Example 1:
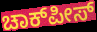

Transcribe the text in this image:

ಚಾಕ್‌ಪೀಸ್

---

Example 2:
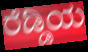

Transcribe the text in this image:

ರೆಡ್ಡಿಯ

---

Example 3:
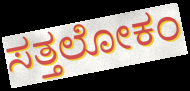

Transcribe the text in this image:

ಸತ್ತಲೋಕಂ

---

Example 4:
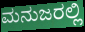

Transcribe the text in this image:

ಮನುಜರಲ್ಲಿ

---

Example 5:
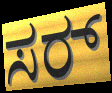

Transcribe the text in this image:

ಸರ‍್